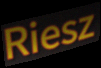
Riesz